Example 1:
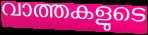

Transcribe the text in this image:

വാത്തകളുടെ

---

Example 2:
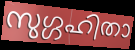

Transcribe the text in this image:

സുഗ്ഗഹിതാ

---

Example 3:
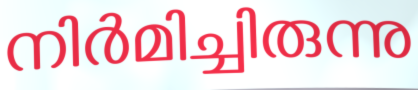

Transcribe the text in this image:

നിർമിച്ചിരുന്നു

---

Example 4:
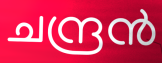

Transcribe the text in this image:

ചന്ദ്രൻ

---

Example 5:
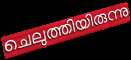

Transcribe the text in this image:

ചെലുത്തിയിരുന്നു